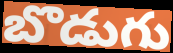
బొడుగు